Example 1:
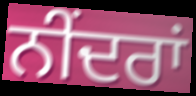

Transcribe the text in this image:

ਨੀਂਦਰਾਂ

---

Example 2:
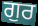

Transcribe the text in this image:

ਗੁਰ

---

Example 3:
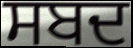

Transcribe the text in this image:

ਸਬਦ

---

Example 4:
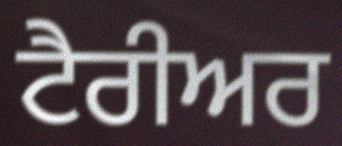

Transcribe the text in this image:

ਟੈਰੀਅਰ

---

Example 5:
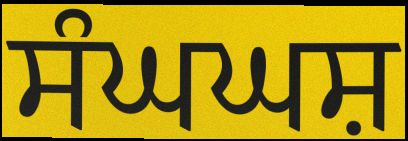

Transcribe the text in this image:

ਸੰਘਘਸ਼